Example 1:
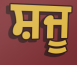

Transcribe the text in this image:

ਸ਼ਜੂ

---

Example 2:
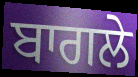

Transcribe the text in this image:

ਬਾਗਲੇ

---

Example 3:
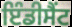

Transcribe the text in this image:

ਇੰਡੀਸੈਂਟ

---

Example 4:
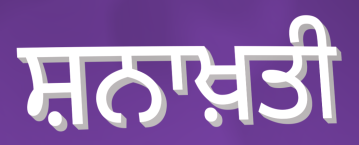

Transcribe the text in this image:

ਸ਼ਨਾਖ਼ਤੀ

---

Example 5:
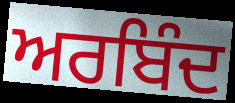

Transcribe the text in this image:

ਅਰਬਿੰਦ